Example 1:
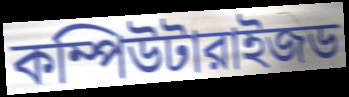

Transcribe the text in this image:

কম্পিউটারাইজড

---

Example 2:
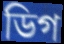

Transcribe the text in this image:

ডিগ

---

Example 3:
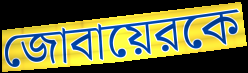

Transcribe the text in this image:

জোবায়েরকে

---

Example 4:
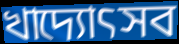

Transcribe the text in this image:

খাদ্যোৎসব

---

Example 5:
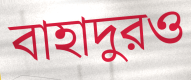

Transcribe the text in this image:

বাহাদুরও